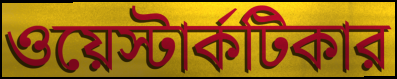
ওয়েস্টার্কটিকার